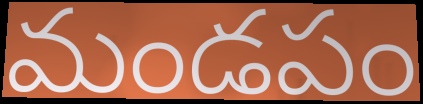
మండపం